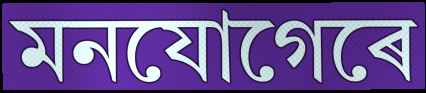
মনযোগেৰে